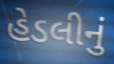
હેડલીનું